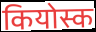
कियोस्क